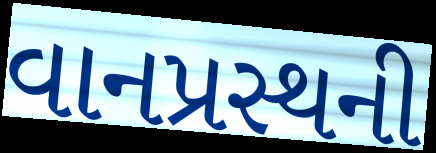
વાનપ્રસ્થની